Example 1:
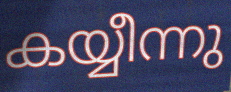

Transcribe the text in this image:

കയ്യീന്നു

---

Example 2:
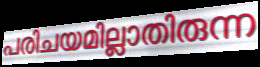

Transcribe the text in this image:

പരിചയമില്ലാതിരുന്ന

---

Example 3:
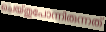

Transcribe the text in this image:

ചെയ്തുപോന്നിരുന്നത്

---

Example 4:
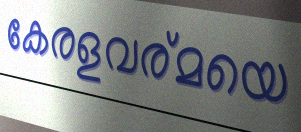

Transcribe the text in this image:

കേരളവര്മയെ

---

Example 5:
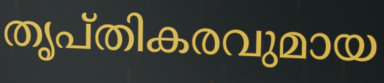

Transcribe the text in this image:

തൃപ്തികരവുമായ